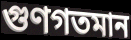
গুণগতমান